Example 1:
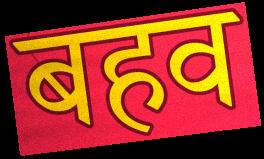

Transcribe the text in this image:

बहव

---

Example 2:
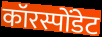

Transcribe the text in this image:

कॉरस्पोंडेट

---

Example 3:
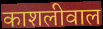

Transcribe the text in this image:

काशलीवाल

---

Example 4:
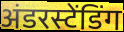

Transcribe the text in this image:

अंडरस्टेंडिंग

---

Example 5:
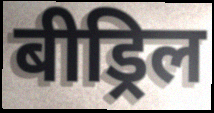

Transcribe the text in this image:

बीड्रिल